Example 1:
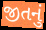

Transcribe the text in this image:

જીતનું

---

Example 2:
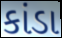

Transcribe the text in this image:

કાંડા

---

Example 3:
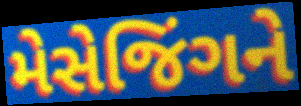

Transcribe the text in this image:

મેસેજિંગને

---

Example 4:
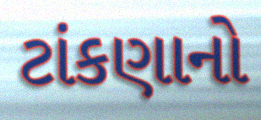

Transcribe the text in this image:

ટાંકણાનો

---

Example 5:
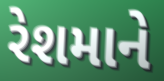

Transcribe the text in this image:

રેશમાને